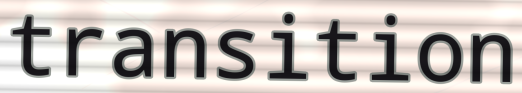
transition